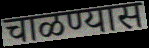
चाळण्यास